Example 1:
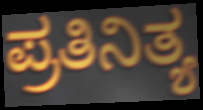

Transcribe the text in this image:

ಪ್ರತಿನಿತ್ಯ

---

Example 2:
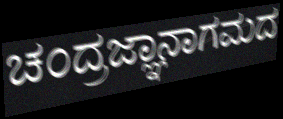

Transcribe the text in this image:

ಚಂದ್ರಜ್ಞಾನಾಗಮದ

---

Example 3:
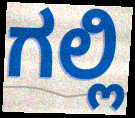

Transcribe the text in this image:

ಗಲ್ಲಿ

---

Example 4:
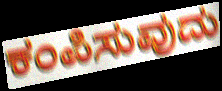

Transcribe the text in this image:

ಕಂಪಿಸುವುದು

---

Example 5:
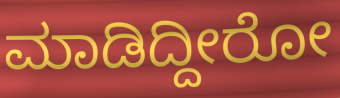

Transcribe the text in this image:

ಮಾಡಿದ್ದೀರೋ